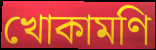
খোকামণি